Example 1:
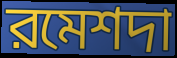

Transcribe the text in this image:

রমেশদা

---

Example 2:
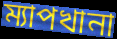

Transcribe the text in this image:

ম্যাপখানা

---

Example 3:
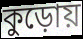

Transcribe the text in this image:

কুড়োয়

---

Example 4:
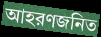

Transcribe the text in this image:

আহরণজনিত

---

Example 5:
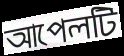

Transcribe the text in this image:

আপেলটি